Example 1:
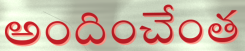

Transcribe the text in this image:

అందించేంత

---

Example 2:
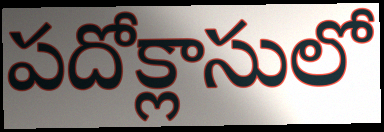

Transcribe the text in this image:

పదోక్లాసులో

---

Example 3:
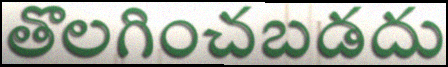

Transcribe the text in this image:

తొలగించబడదు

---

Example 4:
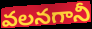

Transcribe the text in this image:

వలనగానీ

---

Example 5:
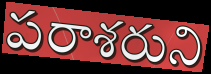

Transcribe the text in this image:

పరాశరుని